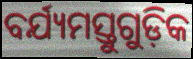
ବର୍ଯ୍ୟମସ୍ତୁଗୁଡ଼ିକ